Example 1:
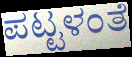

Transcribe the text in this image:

ಪಟ್ಟಳಂತೆ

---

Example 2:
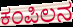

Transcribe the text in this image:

ಕಂಪಿಲನ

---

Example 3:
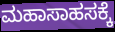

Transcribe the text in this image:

ಮಹಾಸಾಹಸಕ್ಕೆ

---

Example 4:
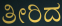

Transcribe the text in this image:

ತೀರಿದ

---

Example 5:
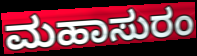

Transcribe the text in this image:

ಮಹಾಸುರಂ